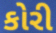
કોરી